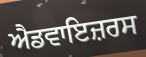
ਐਡਵਾਇਜ਼ਰਸ